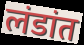
लंडांत